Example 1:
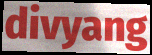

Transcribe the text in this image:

divyang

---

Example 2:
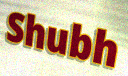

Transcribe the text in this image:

Shubh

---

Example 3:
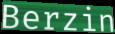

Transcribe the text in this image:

Berzin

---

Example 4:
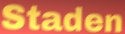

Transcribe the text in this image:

Staden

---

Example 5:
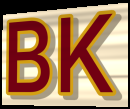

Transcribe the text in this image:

BK